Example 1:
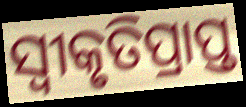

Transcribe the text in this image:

ସ୍ୱୀକୃତିପ୍ରାପ୍ତ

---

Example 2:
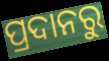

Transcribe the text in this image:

ପ୍ରଦାନରୁ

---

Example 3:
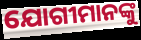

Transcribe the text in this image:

ଯୋଗୀମାନଙ୍କୁ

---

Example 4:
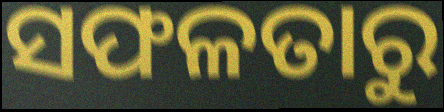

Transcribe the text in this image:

ସଫଳତାରୁ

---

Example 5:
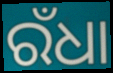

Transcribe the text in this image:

ରଁଧା